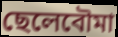
ছেলেবৌমা